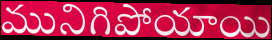
మునిగిపోయాయి